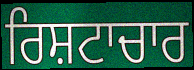
ਰਿਸ਼ਟਾਚਾਰ